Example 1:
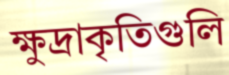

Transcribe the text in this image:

ক্ষুদ্রাকৃতিগুলি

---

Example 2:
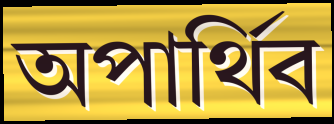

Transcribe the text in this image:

অপার্থিব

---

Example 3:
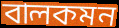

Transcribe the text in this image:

বালকমন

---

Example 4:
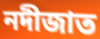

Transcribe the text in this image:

নদীজাত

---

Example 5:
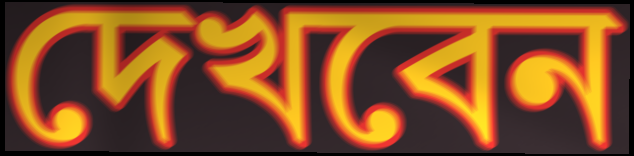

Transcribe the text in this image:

দেখবেন